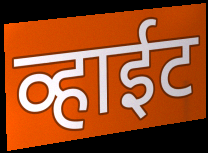
व्हाईट